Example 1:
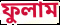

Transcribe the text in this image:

ফুলাম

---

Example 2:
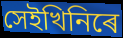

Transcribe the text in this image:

সেইখিনিৰে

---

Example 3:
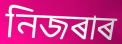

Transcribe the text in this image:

নিজৰাৰ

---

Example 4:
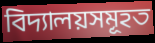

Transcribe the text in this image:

বিদ্যালয়সমূহত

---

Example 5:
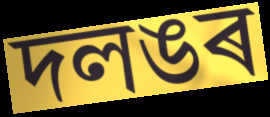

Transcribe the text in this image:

দলঙৰ